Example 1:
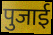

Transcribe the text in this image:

पुजाई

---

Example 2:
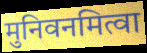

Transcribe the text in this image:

मुनिवनमित्वा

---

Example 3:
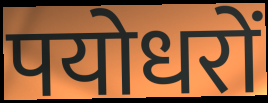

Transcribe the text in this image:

पयोधरों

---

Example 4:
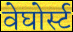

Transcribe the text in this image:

वेघोर्स्ट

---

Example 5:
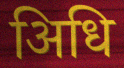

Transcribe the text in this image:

अिधि